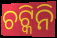
ଚଟ୍କିନି